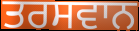
ਤਰਸਵਾਨ